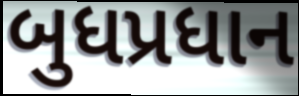
બુધપ્રધાન